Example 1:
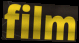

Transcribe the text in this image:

film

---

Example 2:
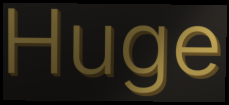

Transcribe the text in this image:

Huge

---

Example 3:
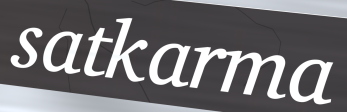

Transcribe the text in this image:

satkarma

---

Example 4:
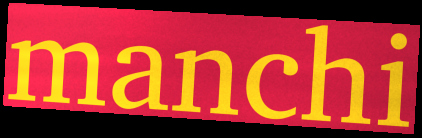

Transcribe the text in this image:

manchi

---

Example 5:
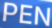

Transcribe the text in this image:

PEN